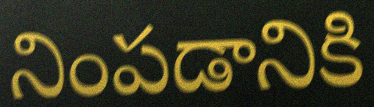
నింపడానికి